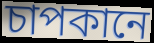
চাপকানে